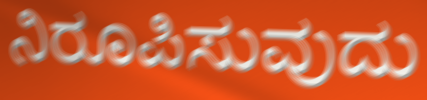
ನಿರೂಪಿಸುವುದು